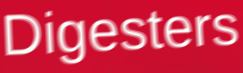
Digesters